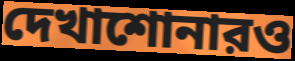
দেখাশোনারও